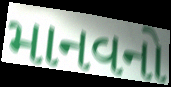
માનવનો